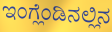
ಇಂಗ್ಲೆಂಡಿನಲ್ಲಿನ